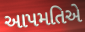
આપમતિએ